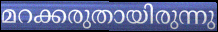
മറക്കരുതായിരുന്നു